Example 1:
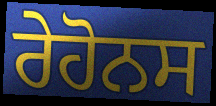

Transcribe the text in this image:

ਰੇਹੋਨਸ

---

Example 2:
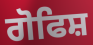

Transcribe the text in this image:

ਗੋਫਿਸ਼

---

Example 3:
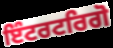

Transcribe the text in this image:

ਇੰਟਰਟਰਿਗੋ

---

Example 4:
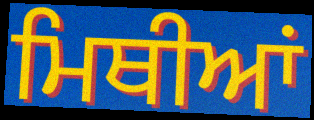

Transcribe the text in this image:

ਮਿਥੀਆਂ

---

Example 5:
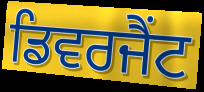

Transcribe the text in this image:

ਡਿਵਰਜੈਂਟ